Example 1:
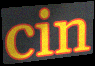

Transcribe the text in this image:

cin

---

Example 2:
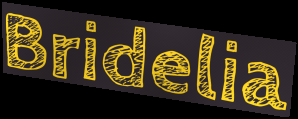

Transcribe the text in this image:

Bridelia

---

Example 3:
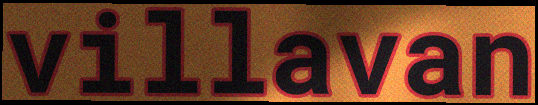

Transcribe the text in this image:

villavan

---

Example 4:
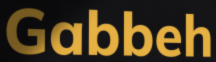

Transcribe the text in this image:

Gabbeh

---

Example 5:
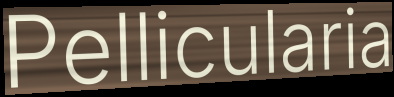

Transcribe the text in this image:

Pellicularia